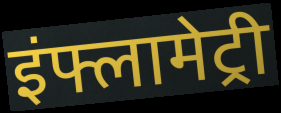
इंफ्लामेट्री